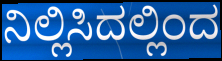
ನಿಲ್ಲಿಸಿದಲ್ಲಿಂದ